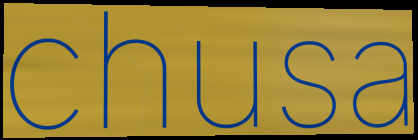
chusa